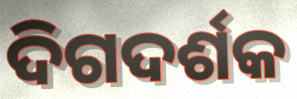
ଦିଗଦର୍ଶକ